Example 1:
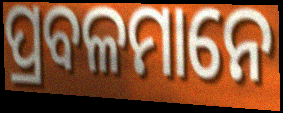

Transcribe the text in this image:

ପ୍ରବଳମାନେ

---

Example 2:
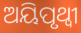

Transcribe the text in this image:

ଅୟିପୃଥ୍ୱୀ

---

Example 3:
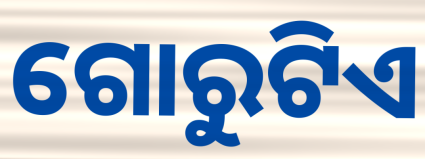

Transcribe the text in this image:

ଗୋରୁଟିଏ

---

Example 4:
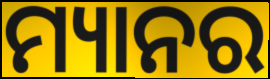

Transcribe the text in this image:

ମ୍ୟାନର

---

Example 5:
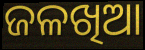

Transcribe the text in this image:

ଜଳଖିଆ